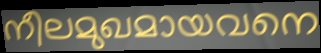
നീലമുഖമായവനെ